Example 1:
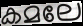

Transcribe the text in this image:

കമലേ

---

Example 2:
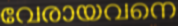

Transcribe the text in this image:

വേരായവനെ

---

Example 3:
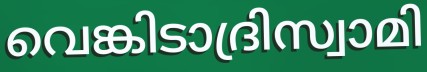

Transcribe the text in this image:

വെങ്കിടാദ്രിസ്വാമി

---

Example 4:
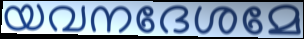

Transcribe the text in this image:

യവനദേശമേ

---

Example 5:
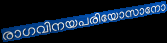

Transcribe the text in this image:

രാഗവിനയപരിയോസാനോ